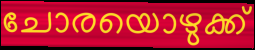
ചോരയൊഴുക്ക്